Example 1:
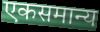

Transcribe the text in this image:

एकसमान्य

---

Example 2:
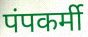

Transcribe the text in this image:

पंपकर्मी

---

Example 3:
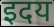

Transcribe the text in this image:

इदय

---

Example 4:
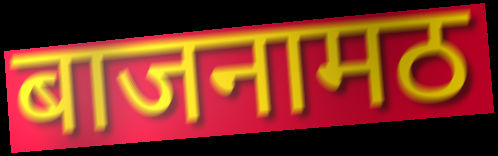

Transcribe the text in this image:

बाजनामठ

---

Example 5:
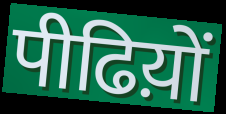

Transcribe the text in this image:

पीढिय़ों